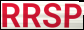
RRSP